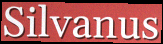
Silvanus